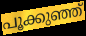
പൂക്കുഞ്ഞ്